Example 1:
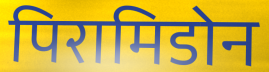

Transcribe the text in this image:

पिरामिडोन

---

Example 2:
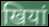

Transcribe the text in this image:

खियां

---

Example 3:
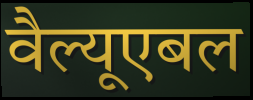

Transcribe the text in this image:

वैल्यूएबल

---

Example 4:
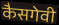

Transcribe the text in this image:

कैसगेवी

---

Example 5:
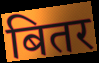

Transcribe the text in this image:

बितर